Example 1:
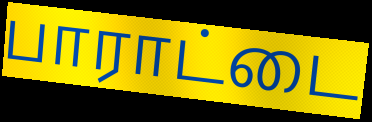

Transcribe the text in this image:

பாராட்டை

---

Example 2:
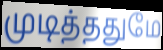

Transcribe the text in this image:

முடித்ததுமே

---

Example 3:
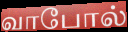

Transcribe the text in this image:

வாபோல்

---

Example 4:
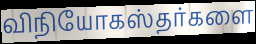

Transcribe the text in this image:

விநியோகஸ்தர்களை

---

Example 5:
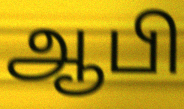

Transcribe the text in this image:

ஆபி